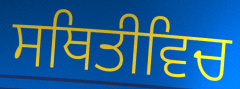
ਸਥਿਤੀਵਿਚ